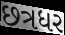
છત્રધર